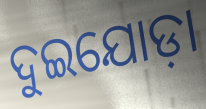
ଦୁଇଯୋଡ଼ା